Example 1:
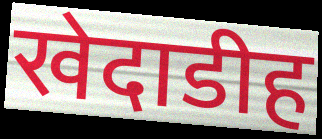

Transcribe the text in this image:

खेदाडीह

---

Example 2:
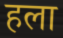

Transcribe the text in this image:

हला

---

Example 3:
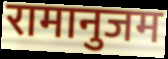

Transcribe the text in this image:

रामानुजम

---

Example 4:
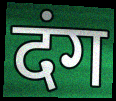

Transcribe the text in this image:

दंग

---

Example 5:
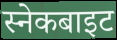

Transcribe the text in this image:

स्नेकबाइट